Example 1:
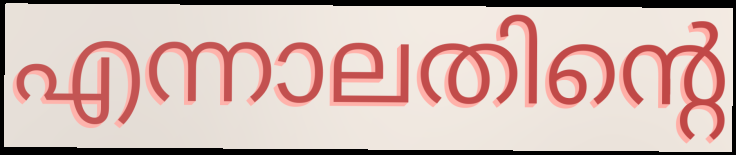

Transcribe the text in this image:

എന്നാലതിന്റെ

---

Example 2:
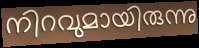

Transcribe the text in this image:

നിറവുമായിരുന്നു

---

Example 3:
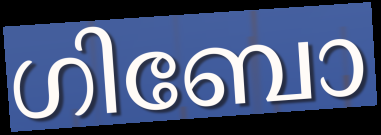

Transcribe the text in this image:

ഗിബോ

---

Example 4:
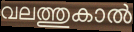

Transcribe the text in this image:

വലത്തുകാൽ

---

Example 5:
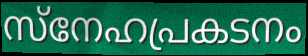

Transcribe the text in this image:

സ്നേഹപ്രകടനം